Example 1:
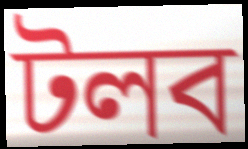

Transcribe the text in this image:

টলব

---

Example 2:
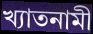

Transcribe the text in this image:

খ্যাতনামী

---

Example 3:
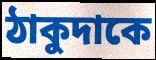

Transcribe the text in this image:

ঠাকুদাকে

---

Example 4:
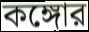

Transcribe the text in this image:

কঙ্গোর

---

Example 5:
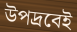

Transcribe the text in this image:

উপদ্রবেই